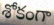
శోకంగా